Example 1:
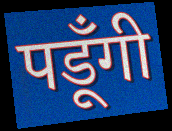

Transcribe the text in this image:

पडूँगी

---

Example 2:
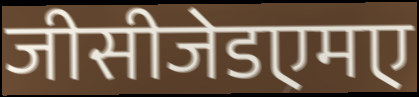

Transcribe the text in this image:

जीसीजेडएमए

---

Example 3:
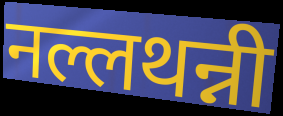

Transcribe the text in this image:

नल्लथन्नी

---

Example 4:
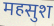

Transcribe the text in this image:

महसुश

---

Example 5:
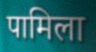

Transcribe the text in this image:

पामिला